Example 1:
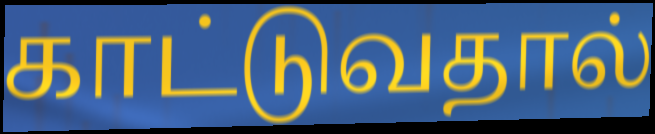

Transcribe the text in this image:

காட்டுவதால்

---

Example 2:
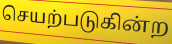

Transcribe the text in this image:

செயற்படுகின்ற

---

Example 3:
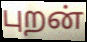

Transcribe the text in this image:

புறன்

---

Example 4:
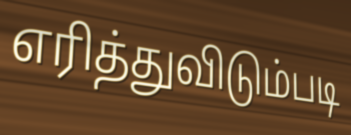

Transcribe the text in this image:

எரித்துவிடும்படி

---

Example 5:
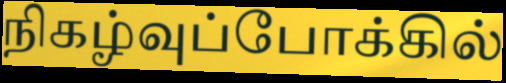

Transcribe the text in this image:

நிகழ்வுப்போக்கில்